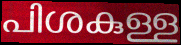
പിശകുള്ള